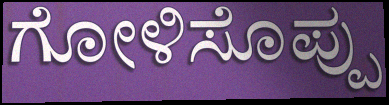
ಗೋಳಿಸೊಪ್ಪು